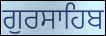
ਗੁਰਸਾਹਿਬ